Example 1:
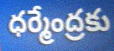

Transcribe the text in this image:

ధర్మేంద్రకు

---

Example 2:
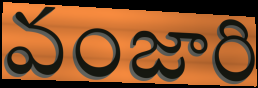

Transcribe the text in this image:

వంజారి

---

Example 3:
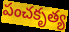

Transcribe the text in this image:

పంచకృత్య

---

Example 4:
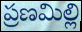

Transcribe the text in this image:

ప్రణమిల్లి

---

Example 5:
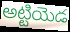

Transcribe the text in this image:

అట్టియెడ